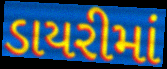
ડાયરીમાં